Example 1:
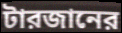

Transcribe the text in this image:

টারজানের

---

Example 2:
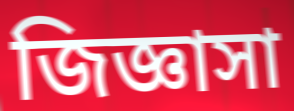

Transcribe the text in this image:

জিজ্ঞাসা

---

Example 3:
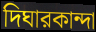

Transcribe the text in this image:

দিঘারকান্দা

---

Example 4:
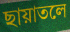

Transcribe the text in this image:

ছায়াতলে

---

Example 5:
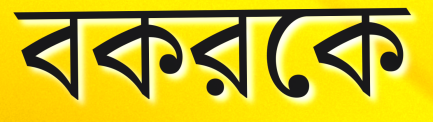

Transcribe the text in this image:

বকরকে